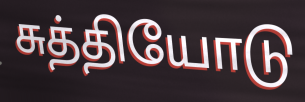
சுத்தியோடு